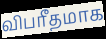
விபரீதமாக